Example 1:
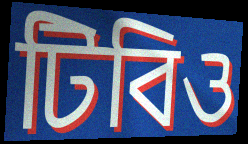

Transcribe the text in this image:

টিবিও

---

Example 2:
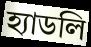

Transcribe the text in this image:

হ্যাডলি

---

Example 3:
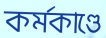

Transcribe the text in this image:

কর্মকাণ্ডে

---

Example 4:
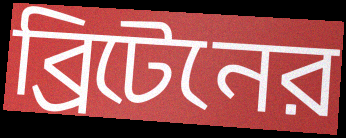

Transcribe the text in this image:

ব্রিটেনের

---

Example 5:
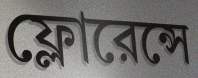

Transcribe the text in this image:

ফ্লোরেন্সে